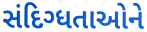
સંદિગ્ધતાઓને